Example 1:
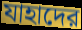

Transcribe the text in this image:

যাহাদের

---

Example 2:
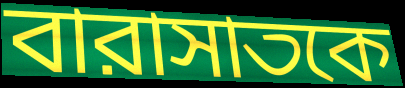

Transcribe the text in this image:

বারাসাতকে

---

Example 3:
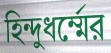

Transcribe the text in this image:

হিন্দুধর্ম্মের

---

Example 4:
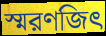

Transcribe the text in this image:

স্মরণজিৎ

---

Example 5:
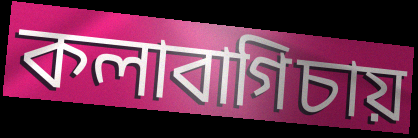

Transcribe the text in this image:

কলাবাগিচায়